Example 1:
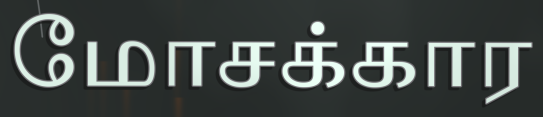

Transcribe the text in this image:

மோசக்கார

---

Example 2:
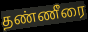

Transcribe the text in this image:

தண்ணீரை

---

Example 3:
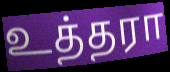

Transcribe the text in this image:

உத்தரா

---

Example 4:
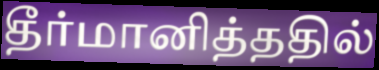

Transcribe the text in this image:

தீர்மானித்ததில்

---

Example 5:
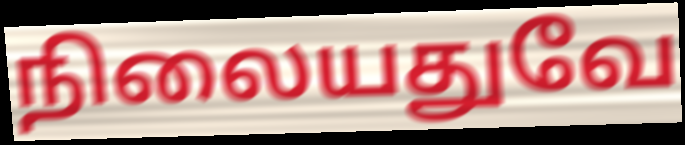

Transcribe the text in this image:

நிலையதுவே